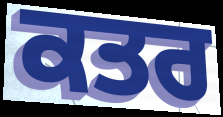
ਕਤਰ